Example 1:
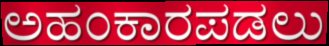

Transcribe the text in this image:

ಅಹಂಕಾರಪಡಲು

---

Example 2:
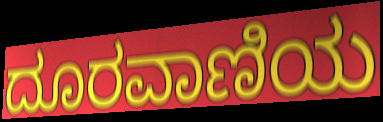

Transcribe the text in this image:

ದೂರವಾಣಿಯ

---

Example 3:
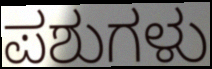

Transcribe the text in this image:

ಪಶುಗಳು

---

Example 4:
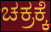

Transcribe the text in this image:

ಚಕ್ರಕ್ಕೆ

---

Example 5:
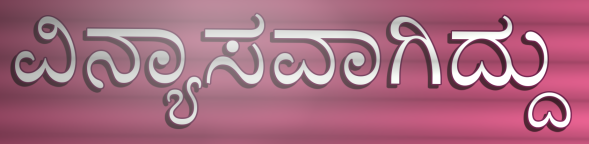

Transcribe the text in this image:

ವಿನ್ಯಾಸವಾಗಿದ್ದು